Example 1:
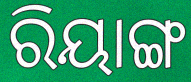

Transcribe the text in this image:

ରିୟାଙ୍ଗ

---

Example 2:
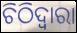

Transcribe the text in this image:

ଚିଠିଦ୍ୱାରା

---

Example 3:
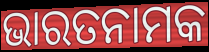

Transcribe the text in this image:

ଭାରତନାମକ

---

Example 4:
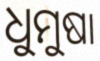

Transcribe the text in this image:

ଧୁମୁଷା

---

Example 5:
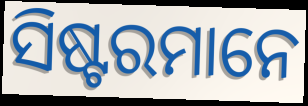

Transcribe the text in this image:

ସିଷ୍ଟରମାନେ